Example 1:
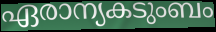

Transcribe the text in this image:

ഏരാന്യകടുംബം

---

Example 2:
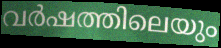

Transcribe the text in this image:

വർഷത്തിലെയും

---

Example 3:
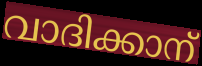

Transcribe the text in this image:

വാദിക്കാന്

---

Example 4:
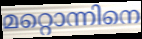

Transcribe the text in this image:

മറ്റൊന്നിനെ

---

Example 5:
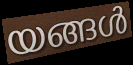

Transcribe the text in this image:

യങ്ങൾ